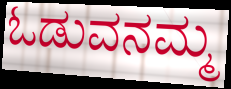
ಓಡುವನಮ್ಮ